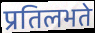
प्रतिलभते